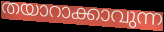
തയാറാക്കാവുന്ന